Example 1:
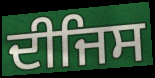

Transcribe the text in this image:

ਦੀਜਿਸ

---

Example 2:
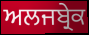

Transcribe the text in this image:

ਅਲਜਬ੍ਰੇਕ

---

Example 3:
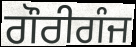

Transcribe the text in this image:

ਗੌਰੀਗੰਜ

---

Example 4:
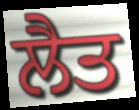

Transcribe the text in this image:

ਲੈਤ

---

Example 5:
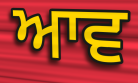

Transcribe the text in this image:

ਆਵ